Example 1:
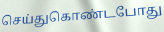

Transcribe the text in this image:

செய்துகொண்டபோது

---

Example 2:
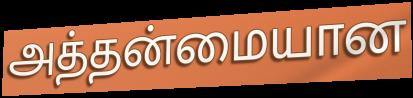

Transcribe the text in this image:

அத்தன்மையான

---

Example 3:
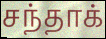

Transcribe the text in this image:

சந்தாக்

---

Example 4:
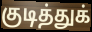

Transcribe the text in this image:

குடித்துக்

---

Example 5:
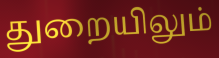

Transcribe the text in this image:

துறையிலும்